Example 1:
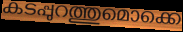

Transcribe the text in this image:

കടപ്പുറത്തുമൊക്കെ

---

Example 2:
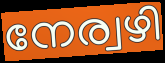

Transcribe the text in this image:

നേര്വഴി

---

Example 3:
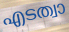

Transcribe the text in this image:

എടത്വാ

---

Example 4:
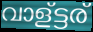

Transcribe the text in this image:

വാള്ട്ടര്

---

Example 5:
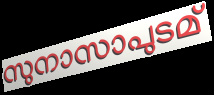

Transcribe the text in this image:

സുനാസാപുടമ്